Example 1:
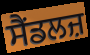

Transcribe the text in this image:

ਸੈਂਡਲਜ਼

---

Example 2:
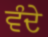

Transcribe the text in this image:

ਵੰਦੇ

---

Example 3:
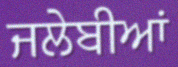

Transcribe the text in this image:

ਜਲੇਬੀਆਂ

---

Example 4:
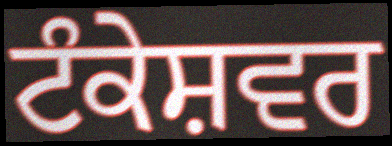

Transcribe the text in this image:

ਟੰਕੇਸ਼ਵਰ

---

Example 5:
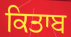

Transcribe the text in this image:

ਕਿਤਾਬ